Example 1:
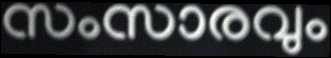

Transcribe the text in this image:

സംസാരവും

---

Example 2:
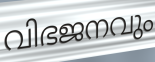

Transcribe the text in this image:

വിഭജനവും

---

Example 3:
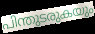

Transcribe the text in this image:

പിന്തുടരുകയും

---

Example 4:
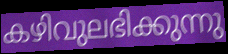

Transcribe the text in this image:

കഴിവുലഭിക്കുന്നു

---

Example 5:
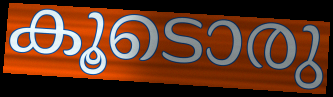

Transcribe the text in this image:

കൂടൊരു